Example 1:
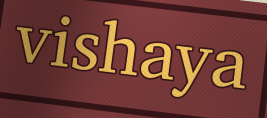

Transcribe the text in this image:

vishaya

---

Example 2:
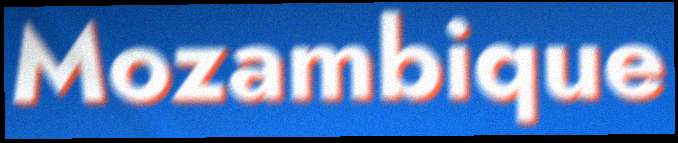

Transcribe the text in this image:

Mozambique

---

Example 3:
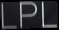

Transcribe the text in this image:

LPL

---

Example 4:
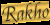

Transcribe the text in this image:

Rakho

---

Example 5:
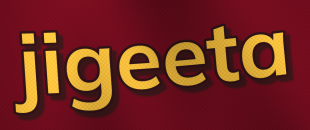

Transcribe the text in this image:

jigeeta